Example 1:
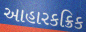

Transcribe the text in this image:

આહારકક્રિક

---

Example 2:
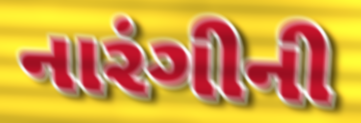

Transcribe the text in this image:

નારંગીની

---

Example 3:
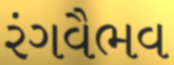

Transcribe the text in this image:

રંગવૈભવ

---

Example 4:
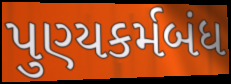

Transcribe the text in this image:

પુણ્યકર્મબંધ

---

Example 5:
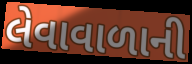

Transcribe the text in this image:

લેવાવાળાની